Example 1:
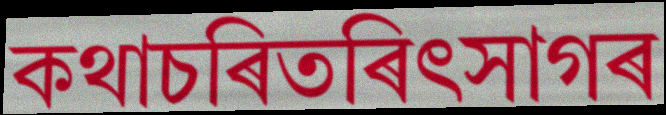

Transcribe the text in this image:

কথাচৰিতৰিৎসাগৰ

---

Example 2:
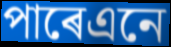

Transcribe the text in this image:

পাৰেএনে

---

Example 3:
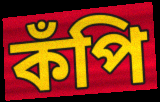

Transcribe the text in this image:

কঁপি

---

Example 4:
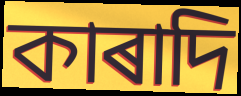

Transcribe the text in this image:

কাৰাদি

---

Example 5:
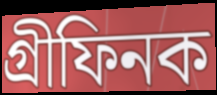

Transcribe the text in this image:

গ্ৰীফিনক